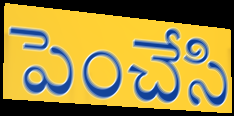
పెంచేసి